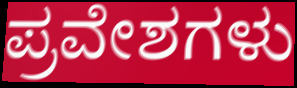
ಪ್ರವೇಶಗಳು